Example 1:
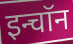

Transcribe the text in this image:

इन्चॉन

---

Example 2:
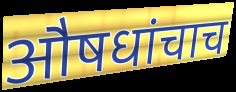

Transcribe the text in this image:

औषधांचाच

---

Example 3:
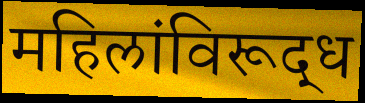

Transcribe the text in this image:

महिलांविरूद्ध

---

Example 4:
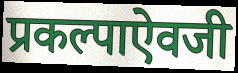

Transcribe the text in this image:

प्रकल्पाऐवजी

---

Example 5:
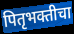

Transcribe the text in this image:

पितृभक्तीचा